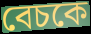
বেচকে